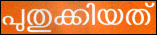
പുതുക്കിയത്